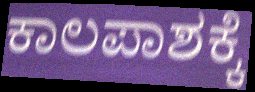
ಕಾಲಪಾಶಕ್ಕೆ